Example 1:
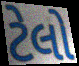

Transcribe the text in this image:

ટેલો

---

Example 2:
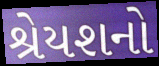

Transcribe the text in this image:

શ્રેયશનો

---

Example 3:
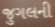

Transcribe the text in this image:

જુગલની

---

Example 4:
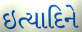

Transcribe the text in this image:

ઇત્‍યાદિને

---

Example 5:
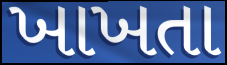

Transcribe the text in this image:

ખાખતા